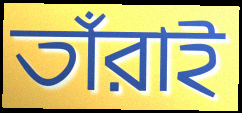
তাঁরাই